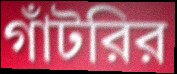
গাঁটরির